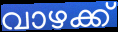
വാഴക്ക്